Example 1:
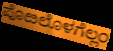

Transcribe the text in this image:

ಪೊೞಲೊಳಗೆಲ್ಲಂ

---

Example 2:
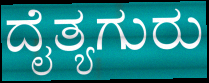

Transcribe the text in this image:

ದೈತ್ಯಗುರು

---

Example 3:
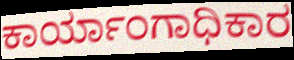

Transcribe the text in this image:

ಕಾರ್ಯಾಂಗಾಧಿಕಾರ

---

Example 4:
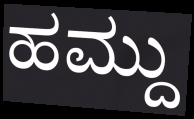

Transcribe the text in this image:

ಹಮ್ದು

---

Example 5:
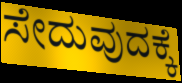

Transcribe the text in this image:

ಸೇದುವುದಕ್ಕೆ